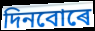
দিনবোৰে